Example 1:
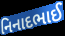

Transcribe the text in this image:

નિનાદભાઈ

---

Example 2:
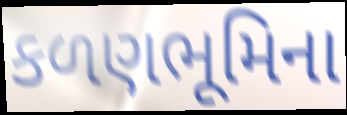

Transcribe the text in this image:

કળણભૂમિના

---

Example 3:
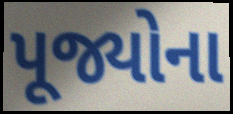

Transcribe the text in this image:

પૂજ્યોના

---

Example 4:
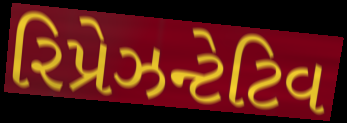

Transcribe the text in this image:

રિપ્રેઝન્ટેટિવ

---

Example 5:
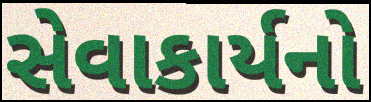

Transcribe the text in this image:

સેવાકાર્યનો